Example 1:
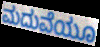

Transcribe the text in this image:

ಮದುವೆಯೂ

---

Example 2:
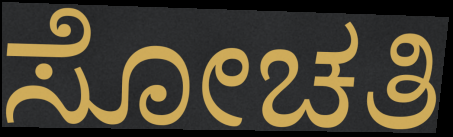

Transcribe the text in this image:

ಸೋಚತಿ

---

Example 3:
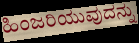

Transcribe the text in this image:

ಹಿಂಜರಿಯುವುದನ್ನು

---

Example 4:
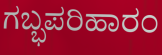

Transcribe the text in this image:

ಗಬ್ಭಪರಿಹಾರಂ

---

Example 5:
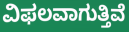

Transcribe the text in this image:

ವಿಫಲವಾಗುತ್ತಿವೆ